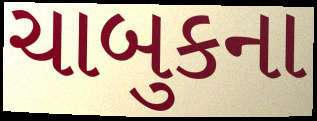
ચાબુકના